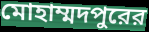
মোহাম্মদপুরের